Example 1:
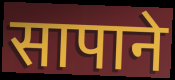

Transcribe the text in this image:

सापाने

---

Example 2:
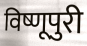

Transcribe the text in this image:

विष्णूपुरी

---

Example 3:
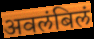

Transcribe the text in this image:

अवलंबिलं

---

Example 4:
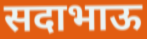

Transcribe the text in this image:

सदाभाऊ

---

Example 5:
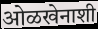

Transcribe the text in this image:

ओळखेनाशी